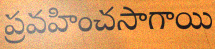
ప్రవహించసాగాయి